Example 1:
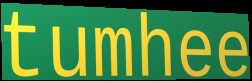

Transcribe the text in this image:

tumhee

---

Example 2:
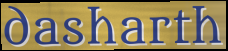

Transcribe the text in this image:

dasharth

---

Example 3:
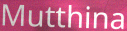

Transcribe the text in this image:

Mutthina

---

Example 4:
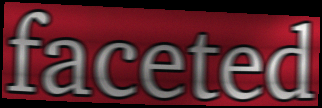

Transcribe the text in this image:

faceted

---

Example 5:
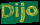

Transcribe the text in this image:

Dijo